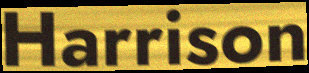
Harrison